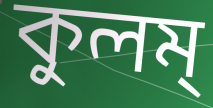
কুলম্